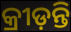
କ୍ରୀଡ଼ନ୍ତି